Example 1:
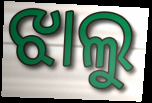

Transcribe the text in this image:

ଝାଲୁ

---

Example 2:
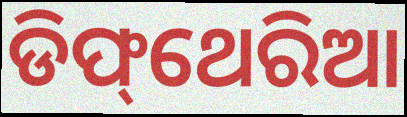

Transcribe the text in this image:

ଡିଫ୍‌ଥେରିଆ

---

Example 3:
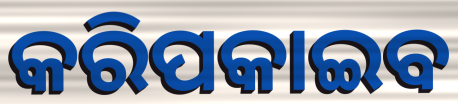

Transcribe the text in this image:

କରିପକାଇବ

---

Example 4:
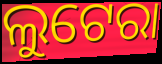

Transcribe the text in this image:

ଲୁଟେରା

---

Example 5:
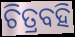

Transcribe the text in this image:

ଚିତ୍ରବହି